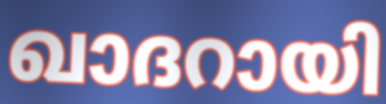
ഖാദറായി